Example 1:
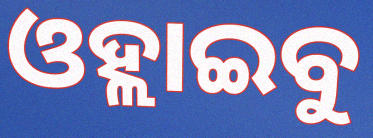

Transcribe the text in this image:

ଓହ୍ଲାଇବୁ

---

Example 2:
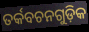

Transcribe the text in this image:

ତର୍କବଚନଗୁଡ଼ିକ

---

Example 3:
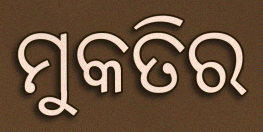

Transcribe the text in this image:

ମୁକତିର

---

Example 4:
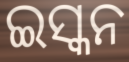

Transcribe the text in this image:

ଇସ୍କନ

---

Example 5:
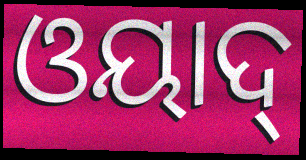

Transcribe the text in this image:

ଓୟାଦ୍